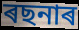
ৰছনাৰ